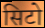
सिटो